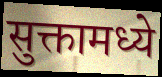
सुक्तामध्ये